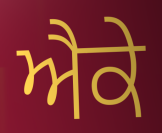
ਐਕੇ